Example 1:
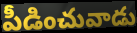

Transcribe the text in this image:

పీడించువాడు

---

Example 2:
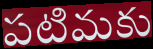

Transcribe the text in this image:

పటిమకు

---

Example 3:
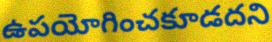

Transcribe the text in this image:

ఉపయోగించకూడదని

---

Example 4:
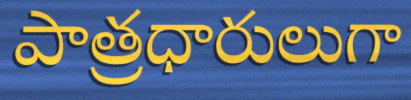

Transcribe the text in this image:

పాత్రధారులుగా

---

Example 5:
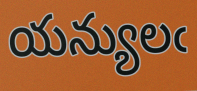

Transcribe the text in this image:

యన్యులఁ